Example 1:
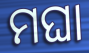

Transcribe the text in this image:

ମଘା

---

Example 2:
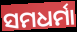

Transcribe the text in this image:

ସମଧର୍ମା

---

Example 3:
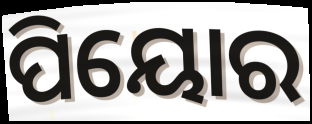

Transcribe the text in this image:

ପିୟୋର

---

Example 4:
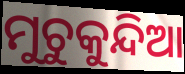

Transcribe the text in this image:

ମୁଚୁକୁନ୍ଦିଆ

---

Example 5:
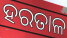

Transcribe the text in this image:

ହରତାଳ